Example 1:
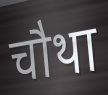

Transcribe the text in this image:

चौथा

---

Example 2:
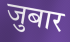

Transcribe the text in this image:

जुबार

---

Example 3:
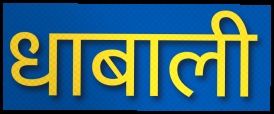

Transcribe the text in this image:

धाबाली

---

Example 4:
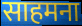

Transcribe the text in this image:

साहमना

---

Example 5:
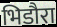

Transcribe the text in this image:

भिडौरा